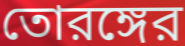
তোরঙ্গের